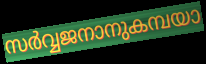
സർവ്വജനാനുകമ്പയാ